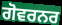
ਗੋਵਰਨਰ